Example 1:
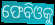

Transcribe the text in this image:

ଫେବିଓକୁ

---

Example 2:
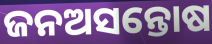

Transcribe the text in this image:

ଜନଅସନ୍ତୋଷ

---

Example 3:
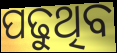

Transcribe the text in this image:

ପଢୁଥିବ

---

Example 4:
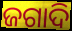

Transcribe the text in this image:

ଜଗାଦି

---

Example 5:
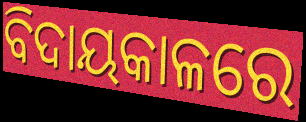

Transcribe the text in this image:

ବିଦାୟକାଳରେ